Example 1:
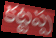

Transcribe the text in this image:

కట్టప్ప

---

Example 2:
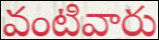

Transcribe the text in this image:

వంటివారు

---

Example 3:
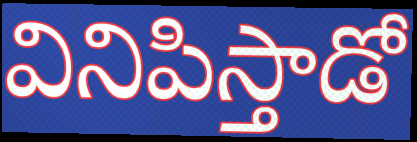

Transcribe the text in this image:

వినిపిస్తాడో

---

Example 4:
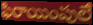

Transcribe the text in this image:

ఫిరాయింపులే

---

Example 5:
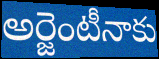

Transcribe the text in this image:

అర్జెంటీనాకు